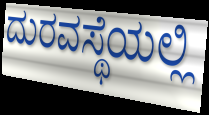
ದುರವಸ್ಥೆಯಲ್ಲಿ